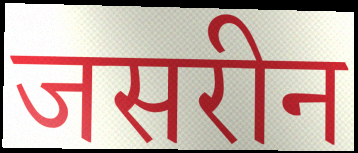
जसरीन